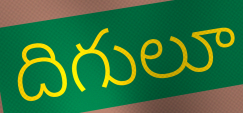
దిగులూ